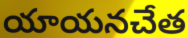
యాయనచేత